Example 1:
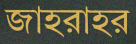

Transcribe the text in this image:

জাহরাহর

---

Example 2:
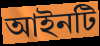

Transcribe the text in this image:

আইনটি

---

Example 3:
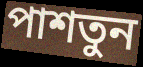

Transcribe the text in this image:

পাশতুন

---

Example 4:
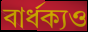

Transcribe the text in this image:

বার্ধক্যও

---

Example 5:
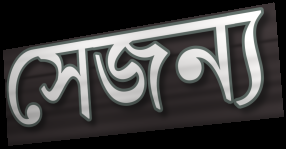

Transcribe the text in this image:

সেজন্য